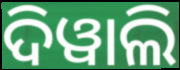
ଦିୱାଲି